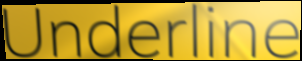
Underline